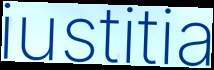
iustitia